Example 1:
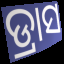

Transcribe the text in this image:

ଡ୍ରାସ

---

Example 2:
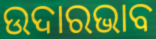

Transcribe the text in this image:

ଉଦାରଭାବ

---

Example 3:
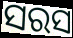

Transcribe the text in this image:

ସରସ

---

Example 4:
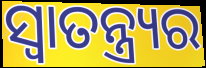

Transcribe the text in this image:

ସ୍ୱାତନ୍ତ୍ର୍ୟର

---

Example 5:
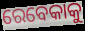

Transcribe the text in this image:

ରେବେକାକୁ